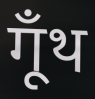
गूँथ